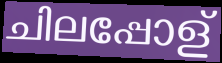
ചിലപ്പോള്